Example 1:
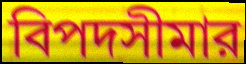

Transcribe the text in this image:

বিপদসীমার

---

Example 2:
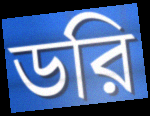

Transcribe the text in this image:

ডরি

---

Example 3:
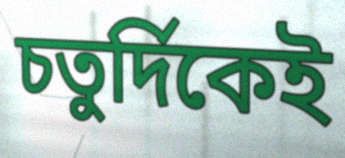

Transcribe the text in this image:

চতুর্দিকেই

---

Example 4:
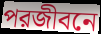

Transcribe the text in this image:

পরজীবনে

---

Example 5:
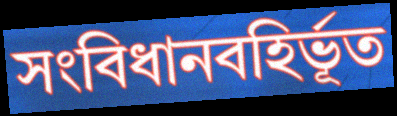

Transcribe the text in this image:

সংবিধানবহির্ভূত